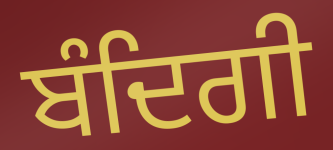
ਬੰਦਿਗੀ